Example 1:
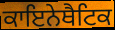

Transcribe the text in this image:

ਕਾਇਨੇਥੈਟਿਕ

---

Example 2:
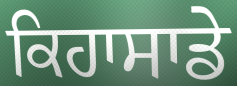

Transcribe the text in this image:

ਕਿਹਾਸਾਡੇ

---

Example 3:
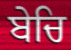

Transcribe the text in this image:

ਬੇਚਿ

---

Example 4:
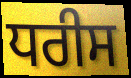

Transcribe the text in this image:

ਧਰੀਸ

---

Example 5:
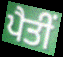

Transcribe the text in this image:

ਪੈਤੀਂ